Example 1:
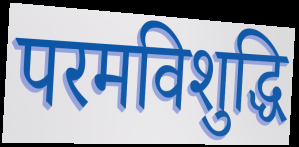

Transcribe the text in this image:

परमविशुद्धि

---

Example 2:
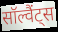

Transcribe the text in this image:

सॉल्वैंट्स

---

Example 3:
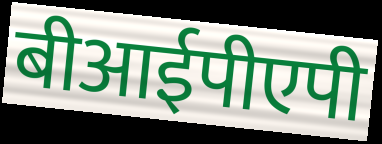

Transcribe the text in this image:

बीआईपीएपी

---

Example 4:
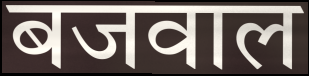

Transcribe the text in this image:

बजवाल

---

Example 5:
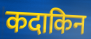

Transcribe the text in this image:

कदाकिन